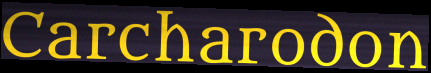
Carcharodon